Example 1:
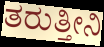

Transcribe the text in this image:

ತರುತ್ತೀನಿ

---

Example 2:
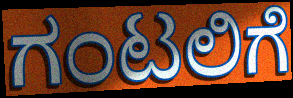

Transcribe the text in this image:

ಗಂಟಲಿಗೆ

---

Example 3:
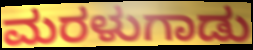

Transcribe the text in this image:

ಮರಳುಗಾಡು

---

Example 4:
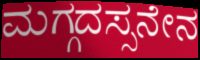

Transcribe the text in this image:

ಮಗ್ಗದಸ್ಸನೇನ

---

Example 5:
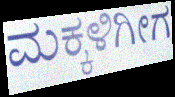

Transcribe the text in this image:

ಮಕ್ಕಳಿಗೀಗ